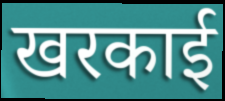
खरकाई